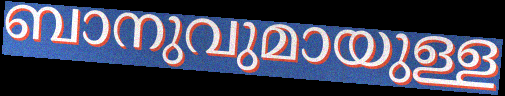
ബാനുവുമായുള്ള